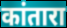
कांतारा